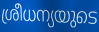
ശ്രീധന്യയുടെ